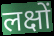
लक्षों